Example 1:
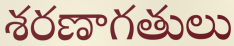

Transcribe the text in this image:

శరణాగతులు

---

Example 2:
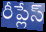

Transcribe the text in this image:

రీప్లేస్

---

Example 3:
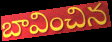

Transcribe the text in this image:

బావించిన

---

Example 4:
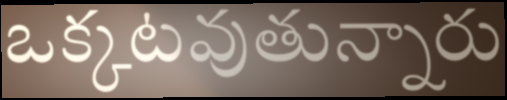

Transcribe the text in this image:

ఒక్కటవుతున్నారు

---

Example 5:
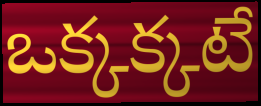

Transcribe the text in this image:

ఒక్కక్కటే